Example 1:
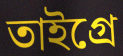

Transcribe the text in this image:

তাইগ্রে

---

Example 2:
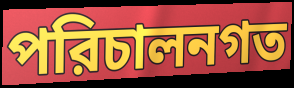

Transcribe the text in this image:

পরিচালনগত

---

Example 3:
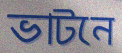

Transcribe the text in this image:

ভাটনে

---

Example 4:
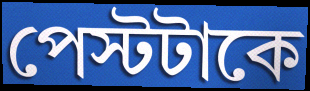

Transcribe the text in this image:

পেস্টটাকে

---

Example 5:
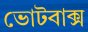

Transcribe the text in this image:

ভোটবাক্স